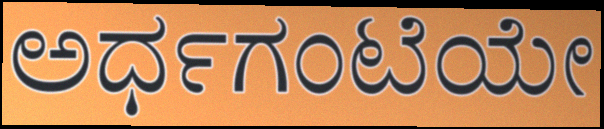
ಅರ್ಧಗಂಟೆಯೇ